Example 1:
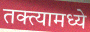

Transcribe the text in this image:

तक्‍त्यामध्ये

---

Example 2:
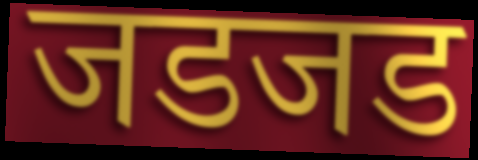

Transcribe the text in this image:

जडजड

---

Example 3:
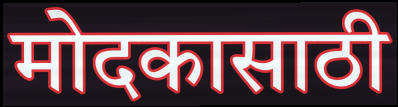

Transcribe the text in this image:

मोदकासाठी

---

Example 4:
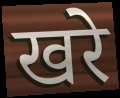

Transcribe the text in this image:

खरे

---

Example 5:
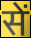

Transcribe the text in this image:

सें